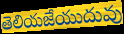
తెలియజేయుదువు